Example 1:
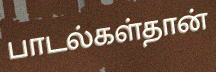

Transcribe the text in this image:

பாடல்கள்தான்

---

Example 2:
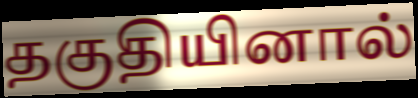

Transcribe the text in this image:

தகுதியினால்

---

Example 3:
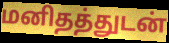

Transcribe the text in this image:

மனிதத்துடன்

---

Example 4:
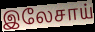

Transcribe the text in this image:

இலேசாய்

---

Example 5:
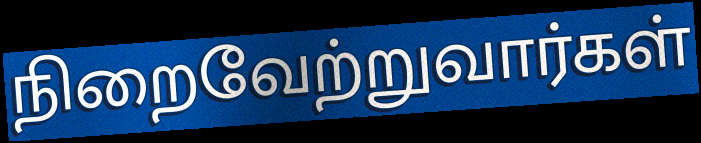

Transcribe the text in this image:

நிறைவேற்றுவார்கள்